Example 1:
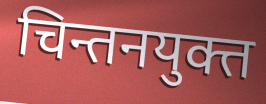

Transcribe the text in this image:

चिन्तनयुक्त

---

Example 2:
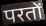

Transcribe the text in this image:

परतों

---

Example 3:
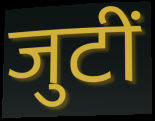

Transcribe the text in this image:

जुटीं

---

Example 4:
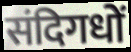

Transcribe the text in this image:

संदिगधों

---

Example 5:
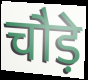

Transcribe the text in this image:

चौड़े